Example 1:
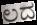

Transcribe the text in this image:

ಲದ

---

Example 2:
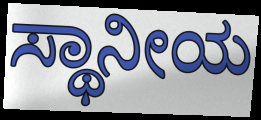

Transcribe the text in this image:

ಸ್ಥಾನೀಯ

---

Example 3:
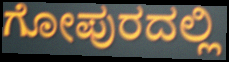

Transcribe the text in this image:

ಗೋಪುರದಲ್ಲಿ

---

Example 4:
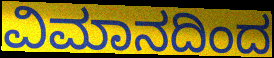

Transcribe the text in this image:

ವಿಮಾನದಿಂದ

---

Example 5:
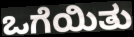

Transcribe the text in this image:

ಒಗೆಯಿತು